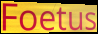
Foetus